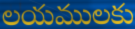
లయములకు